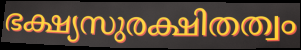
ഭക്ഷ്യസുരക്ഷിതത്വം